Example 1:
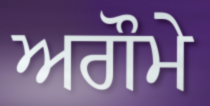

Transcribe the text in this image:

ਅਗੌਮੇ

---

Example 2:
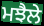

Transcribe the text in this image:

ਮਝੈਲੇ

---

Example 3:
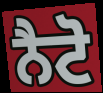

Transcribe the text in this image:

ਨੈਟੋ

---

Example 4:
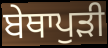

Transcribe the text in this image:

ਬੇਥਾਪੁੜੀ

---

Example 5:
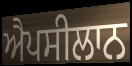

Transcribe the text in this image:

ਐਪਸੀਲਾਨ